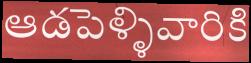
ఆడపెళ్ళివారికి